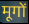
मूगों